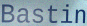
Bastin